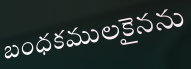
బంధకములకైనను